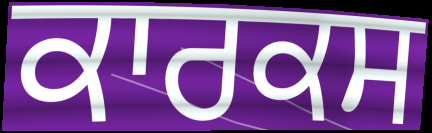
ਕਾਰਕਸ